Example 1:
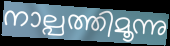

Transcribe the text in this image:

നാല്പത്തിമൂന്നു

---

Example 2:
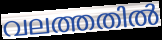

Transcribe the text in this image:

വലത്തതിൽ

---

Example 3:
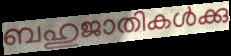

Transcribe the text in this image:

ബഹുജാതികൾക്കു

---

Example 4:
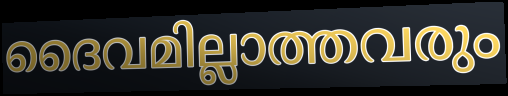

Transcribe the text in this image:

ദൈവമില്ലാത്തവരും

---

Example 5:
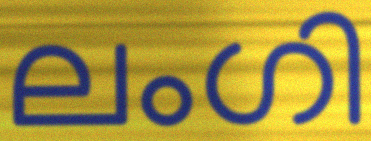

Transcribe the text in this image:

ലംഗി